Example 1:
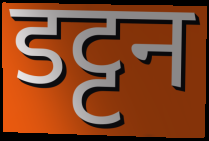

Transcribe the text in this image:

डट्टन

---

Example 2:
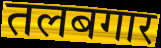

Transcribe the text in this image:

तलबगार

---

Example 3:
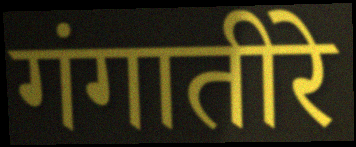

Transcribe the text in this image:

गंगातीरे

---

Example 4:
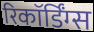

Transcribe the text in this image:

रिकॉर्डिंग्स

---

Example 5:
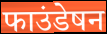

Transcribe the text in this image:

फाउंडेषन